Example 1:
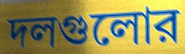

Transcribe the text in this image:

দলগুলোর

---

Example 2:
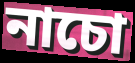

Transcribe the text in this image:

নাচো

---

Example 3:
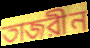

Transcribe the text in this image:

তাজরীন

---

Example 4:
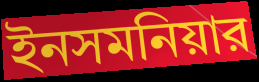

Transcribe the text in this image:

ইনসমনিয়ার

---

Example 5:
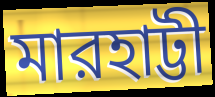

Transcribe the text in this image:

মারহাট্টী